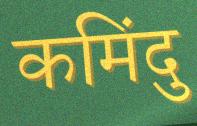
कमिंदु